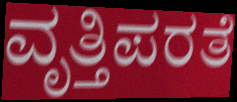
ವೃತ್ತಿಪರತೆ